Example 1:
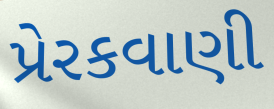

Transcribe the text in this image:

પ્રેરકવાણી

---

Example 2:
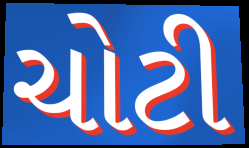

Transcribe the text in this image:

ચોટી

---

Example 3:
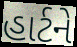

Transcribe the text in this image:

હાર્ટને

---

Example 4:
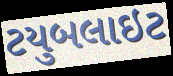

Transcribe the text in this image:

ટયુબલાઇટ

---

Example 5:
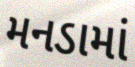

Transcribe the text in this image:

મનડામાં